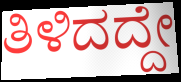
ತಿಳಿದದ್ದೇ